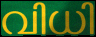
വിധി